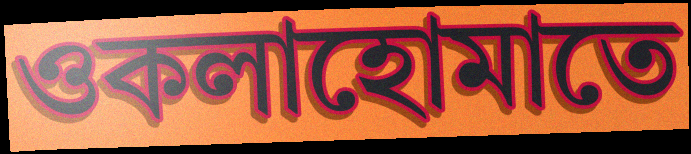
ওকলাহোমাতে